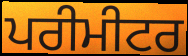
ਪਰੀਮੀਟਰ